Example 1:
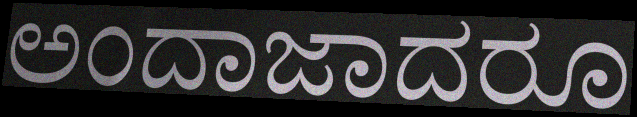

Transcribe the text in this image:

ಅಂದಾಜಾದರೂ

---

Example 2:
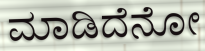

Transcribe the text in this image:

ಮಾಡಿದೆನೋ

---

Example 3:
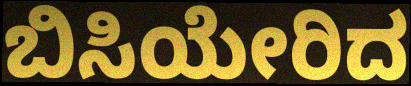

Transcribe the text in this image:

ಬಿಸಿಯೇರಿದ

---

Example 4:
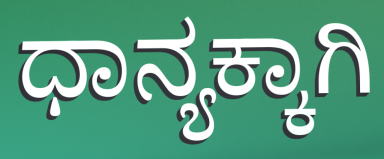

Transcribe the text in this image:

ಧಾನ್ಯಕ್ಕಾಗಿ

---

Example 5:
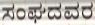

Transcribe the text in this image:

ಸಂಘದವರ